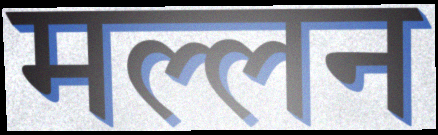
मल्लन